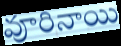
వూరినాయి